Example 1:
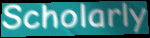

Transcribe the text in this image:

Scholarly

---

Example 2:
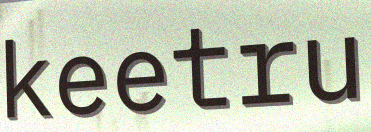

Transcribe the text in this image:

keetru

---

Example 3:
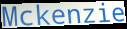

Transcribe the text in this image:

Mckenzie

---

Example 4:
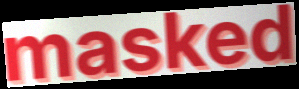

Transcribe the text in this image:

masked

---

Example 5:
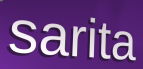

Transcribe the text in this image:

sarita